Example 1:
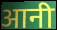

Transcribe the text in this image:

आनी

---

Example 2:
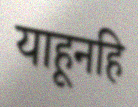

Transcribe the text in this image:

याहूनहि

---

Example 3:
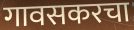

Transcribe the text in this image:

गावसकरचा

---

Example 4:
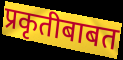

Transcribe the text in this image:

प्रकृतीबाबत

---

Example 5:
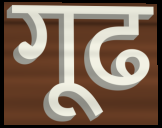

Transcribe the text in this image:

गूढ